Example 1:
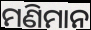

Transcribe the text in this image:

ମଣିମାନ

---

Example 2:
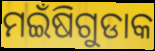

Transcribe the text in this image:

ମଇଁଷିଗୁଡାକ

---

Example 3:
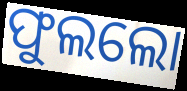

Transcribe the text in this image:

ଫୁଲଲୋ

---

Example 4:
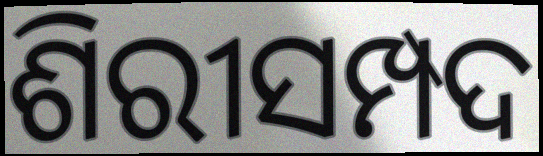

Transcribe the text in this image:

ଶିରୀସମ୍ପଦ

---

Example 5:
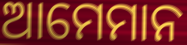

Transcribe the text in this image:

ଆମେମାନ